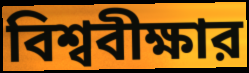
বিশ্ববীক্ষার